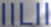
IILII